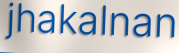
jhakalnan